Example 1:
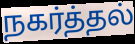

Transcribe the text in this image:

நகர்த்தல்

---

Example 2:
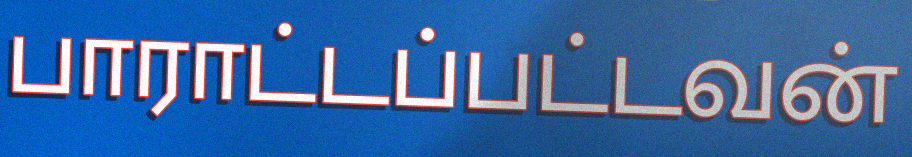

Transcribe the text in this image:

பாராட்டப்பட்டவன்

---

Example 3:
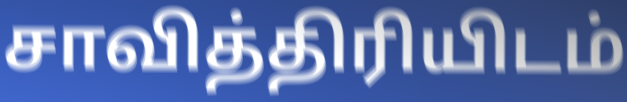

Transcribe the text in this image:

சாவித்திரியிடம்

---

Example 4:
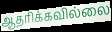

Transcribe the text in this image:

ஆதரிக்கவில்லை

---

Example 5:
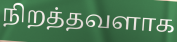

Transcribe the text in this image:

நிறத்தவளாக